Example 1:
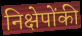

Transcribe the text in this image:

निक्षेपोंकी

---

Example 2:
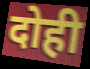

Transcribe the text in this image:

दोही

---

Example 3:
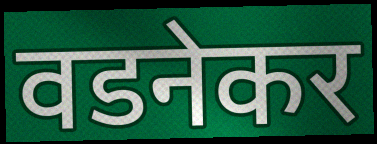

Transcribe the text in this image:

वडनेकर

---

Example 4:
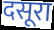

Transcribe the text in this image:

दसूरा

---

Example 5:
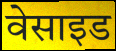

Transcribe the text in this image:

वेसाइड